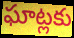
ఘాట్లకు